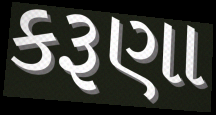
કરૂણા